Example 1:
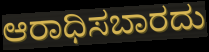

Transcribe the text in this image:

ಆರಾಧಿಸಬಾರದು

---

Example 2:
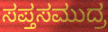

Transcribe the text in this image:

ಸಪ್ತಸಮುದ್ರ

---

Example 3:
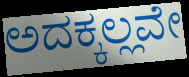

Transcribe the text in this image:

ಅದಕ್ಕಲ್ಲವೇ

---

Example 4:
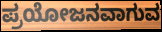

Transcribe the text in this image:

ಪ್ರಯೋಜನವಾಗುವ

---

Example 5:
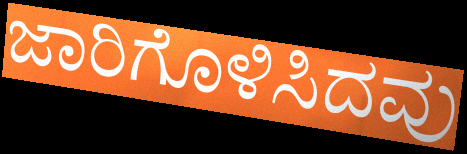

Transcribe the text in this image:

ಜಾರಿಗೊಳಿಸಿದವು